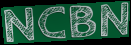
NCBN